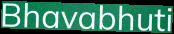
Bhavabhuti